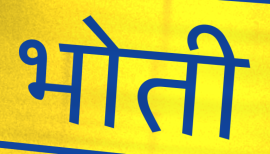
भोती